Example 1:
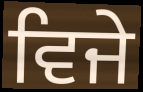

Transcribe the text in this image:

ਵਿਜੇ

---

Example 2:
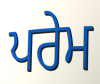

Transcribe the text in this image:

ਪਰੇਮ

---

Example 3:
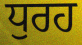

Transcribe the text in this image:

ਧੁਰਹ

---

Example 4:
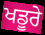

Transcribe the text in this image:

ਖਡੂਰੇ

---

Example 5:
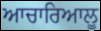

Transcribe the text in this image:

ਆਚਾਰਿਆਲੂ